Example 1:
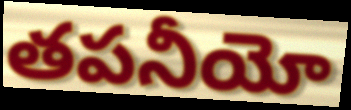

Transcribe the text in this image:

తపనీయో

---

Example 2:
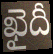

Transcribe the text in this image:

ఖైదీ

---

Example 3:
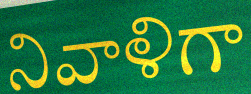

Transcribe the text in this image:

నివాళిగా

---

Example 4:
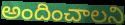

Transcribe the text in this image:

అందించాలని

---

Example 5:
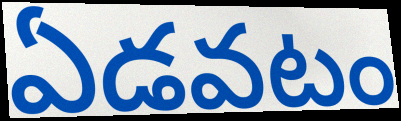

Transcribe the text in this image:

ఏడవటం